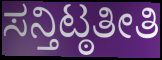
ಸನ್ತಿಟ್ಠತೀತಿ